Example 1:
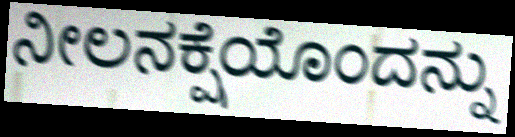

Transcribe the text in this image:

ನೀಲನಕ್ಷೆಯೊಂದನ್ನು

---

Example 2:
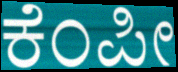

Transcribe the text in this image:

ಕೆಂಪೀ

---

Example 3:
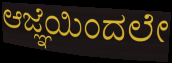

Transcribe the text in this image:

ಆಜ್ಞೆಯಿಂದಲೇ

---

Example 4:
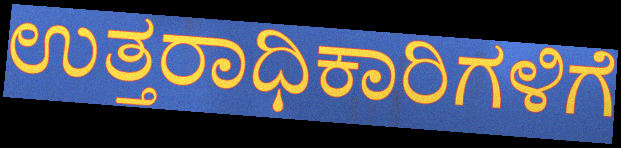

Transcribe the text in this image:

ಉತ್ತರಾಧಿಕಾರಿಗಳಿಗೆ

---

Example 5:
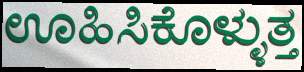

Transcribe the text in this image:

ಊಹಿಸಿಕೊಳ್ಳುತ್ತ